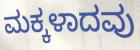
ಮಕ್ಕಳಾದವು